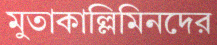
মুতাকাল্লিমিনদের